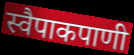
स्वैपाकपाणी